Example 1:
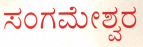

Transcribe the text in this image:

ಸಂಗಮೇಶ್ವರ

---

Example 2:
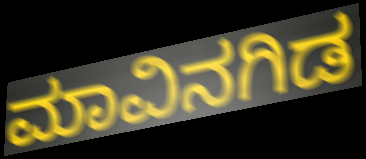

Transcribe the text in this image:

ಮಾವಿನಗಿಡ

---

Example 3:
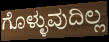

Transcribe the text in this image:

ಗೊಳ್ಳುವುದಿಲ್ಲ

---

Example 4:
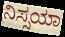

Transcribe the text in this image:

ನಿಸ್ಸಯಾ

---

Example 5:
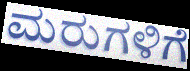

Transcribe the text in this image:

ಮರುಗಳಿಗೆ